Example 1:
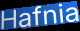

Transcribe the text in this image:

Hafnia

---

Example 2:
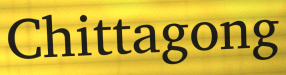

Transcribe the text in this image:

Chittagong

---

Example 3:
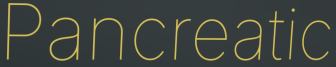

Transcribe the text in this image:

Pancreatic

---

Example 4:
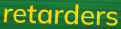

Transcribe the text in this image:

retarders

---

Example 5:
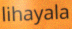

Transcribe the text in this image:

lihayala